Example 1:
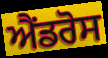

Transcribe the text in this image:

ਐਂਡਰੋਸ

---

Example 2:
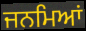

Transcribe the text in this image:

ਜਨਮਿਆਂ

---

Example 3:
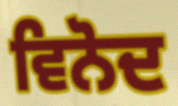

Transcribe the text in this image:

ਵਿਨੋਦ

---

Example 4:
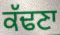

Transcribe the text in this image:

ਕੱਢਣਾ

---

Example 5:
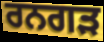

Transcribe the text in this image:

ਰਨਗੜ